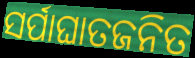
ସର୍ପାଘାତଜନିତ